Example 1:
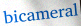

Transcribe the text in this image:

bicameral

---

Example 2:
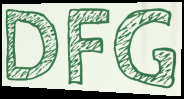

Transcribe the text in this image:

DFG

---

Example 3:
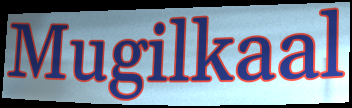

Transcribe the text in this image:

Mugilkaal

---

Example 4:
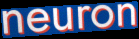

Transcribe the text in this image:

neuron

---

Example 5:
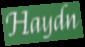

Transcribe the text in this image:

Haydn